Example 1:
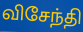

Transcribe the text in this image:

விசேந்தி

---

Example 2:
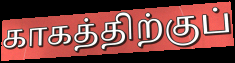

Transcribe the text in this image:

காகத்திற்குப்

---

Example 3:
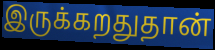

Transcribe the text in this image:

இருக்கறதுதான்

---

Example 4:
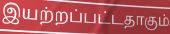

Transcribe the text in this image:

இயற்றப்பட்டதாகும்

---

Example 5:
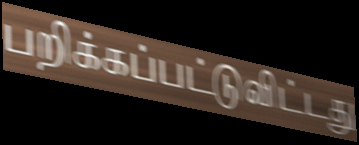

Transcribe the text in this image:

பறிக்கப்பட்டுவிட்டது